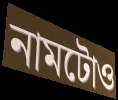
নামটোও